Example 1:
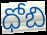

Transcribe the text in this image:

ధోబి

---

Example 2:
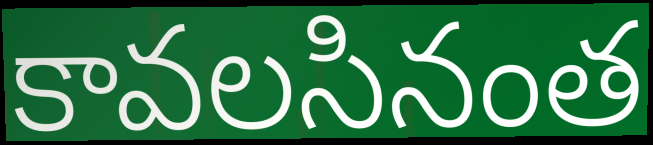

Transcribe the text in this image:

కావలసినంత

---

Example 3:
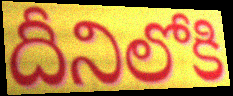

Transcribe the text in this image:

దీనిలోకి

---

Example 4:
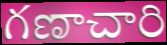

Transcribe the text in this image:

గణాచారి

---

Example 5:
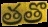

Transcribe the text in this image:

తతొ